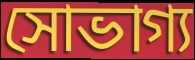
সোভাগ্য